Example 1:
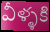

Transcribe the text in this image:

వీళ్ళకి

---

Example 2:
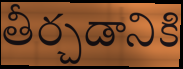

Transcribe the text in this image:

తీర్చడానికి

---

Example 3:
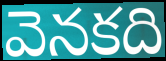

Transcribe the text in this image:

వెనకది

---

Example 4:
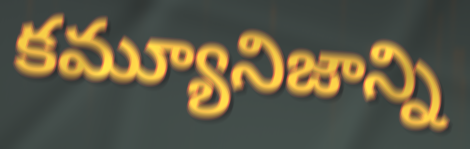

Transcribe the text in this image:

కమ్యూనిజాన్ని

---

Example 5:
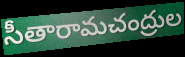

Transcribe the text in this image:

సీతారామచంద్రుల